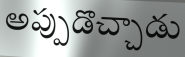
అప్పుడొచ్చాడు